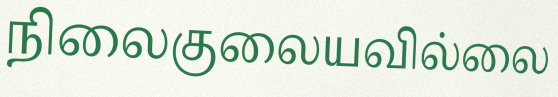
நிலைகுலையவில்லை